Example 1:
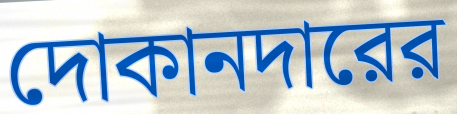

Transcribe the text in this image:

দোকানদারের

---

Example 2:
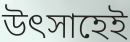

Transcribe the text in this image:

উৎসাহেই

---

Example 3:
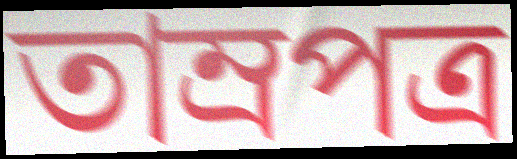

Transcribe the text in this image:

তাম্রপত্র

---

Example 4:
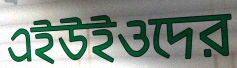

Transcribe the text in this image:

এইউইওদের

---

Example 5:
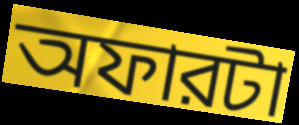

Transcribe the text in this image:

অফারটা